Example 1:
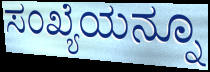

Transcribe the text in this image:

ಸಂಖ್ಯೆಯನ್ನೂ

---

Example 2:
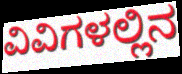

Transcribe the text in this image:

ವಿವಿಗಳಲ್ಲಿನ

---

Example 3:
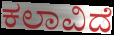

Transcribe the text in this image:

ಕಲಾವಿದೆ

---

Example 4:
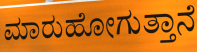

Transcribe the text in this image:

ಮಾರುಹೋಗುತ್ತಾನೆ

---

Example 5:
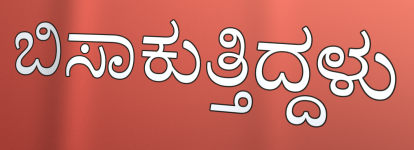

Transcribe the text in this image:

ಬಿಸಾಕುತ್ತಿದ್ದಳು